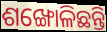
ଶଙ୍ଖୋଳିଛନ୍ତି